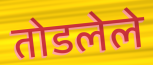
तोडलेले